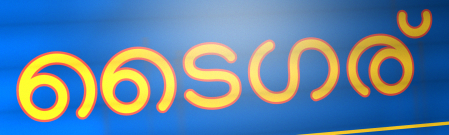
ടൈഗര്